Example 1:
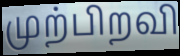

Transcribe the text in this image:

முற்பிறவி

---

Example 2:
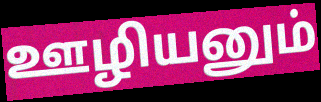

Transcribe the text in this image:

ஊழியனும்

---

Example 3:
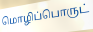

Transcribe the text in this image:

மொழிப்பொருட்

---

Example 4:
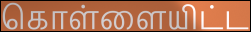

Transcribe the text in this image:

கொள்ளையிட்ட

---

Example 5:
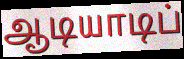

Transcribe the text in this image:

ஆடியாடிப்